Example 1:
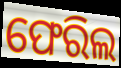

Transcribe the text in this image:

ଫେରିଲ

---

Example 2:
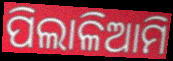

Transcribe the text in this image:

ପିଲାଳିଆମି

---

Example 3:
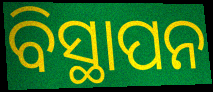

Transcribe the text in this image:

ବିସ୍ଥାପନ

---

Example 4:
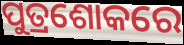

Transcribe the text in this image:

ପୁତ୍ରଶୋକରେ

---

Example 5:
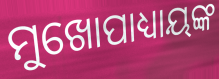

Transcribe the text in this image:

ମୁଖୋପାଧ୍ୟାୟଙ୍କ